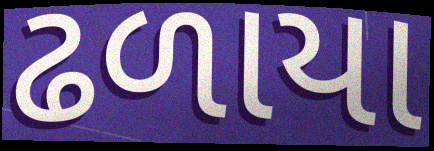
ઢળાયા